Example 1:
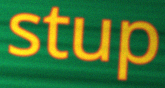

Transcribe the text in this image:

stup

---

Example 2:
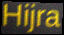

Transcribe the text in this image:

Hijra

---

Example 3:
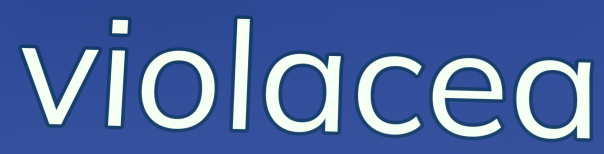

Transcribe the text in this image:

violacea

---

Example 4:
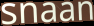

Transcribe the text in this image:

snaan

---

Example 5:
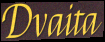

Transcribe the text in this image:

Dvaita